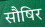
सौषिर